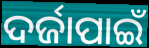
ଦର୍ଜାପାଇଁ